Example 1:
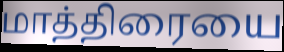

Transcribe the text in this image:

மாத்திரையை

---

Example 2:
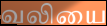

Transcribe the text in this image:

வலியை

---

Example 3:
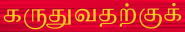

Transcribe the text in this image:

கருதுவதற்குக்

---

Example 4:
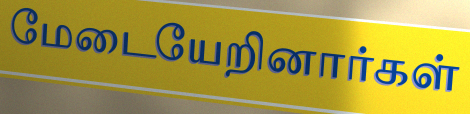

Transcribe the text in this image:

மேடையேறினார்கள்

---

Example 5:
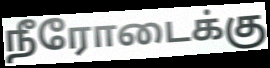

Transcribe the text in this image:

நீரோடைக்கு